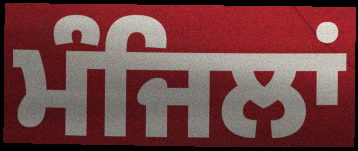
ਮੰਜਿਲਾਂ